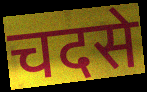
चदसे